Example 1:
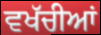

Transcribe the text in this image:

ਵਖੱਚੀਆਂ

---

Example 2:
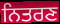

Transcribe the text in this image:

ਨਿਤਰਣ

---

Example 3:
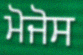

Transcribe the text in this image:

ਮੋਜੋਸ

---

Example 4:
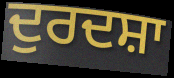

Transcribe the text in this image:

ਦੁਰਦਸ਼ਾ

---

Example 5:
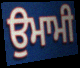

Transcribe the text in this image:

ਉਮਾਮੀ